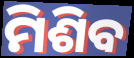
ମିଶିବ